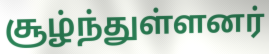
சூழ்ந்துள்ளனர்